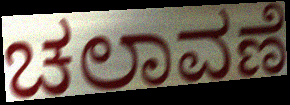
ಚಲಾವಣೆ